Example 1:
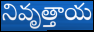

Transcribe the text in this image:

నివృత్తాయ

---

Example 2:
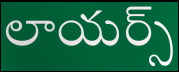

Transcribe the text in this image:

లాయర్స్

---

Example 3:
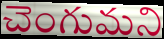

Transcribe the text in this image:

చెంగుమని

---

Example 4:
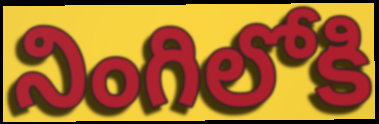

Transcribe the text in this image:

నింగిలోకి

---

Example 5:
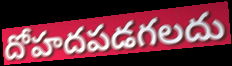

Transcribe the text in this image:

దోహదపడగలదు